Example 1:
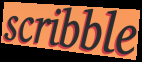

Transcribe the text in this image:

scribble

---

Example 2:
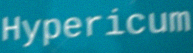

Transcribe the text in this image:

Hypericum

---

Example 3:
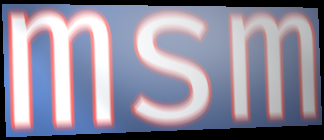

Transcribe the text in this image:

msm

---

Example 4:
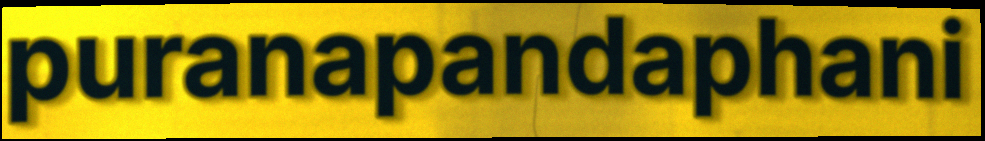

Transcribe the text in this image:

puranapandaphani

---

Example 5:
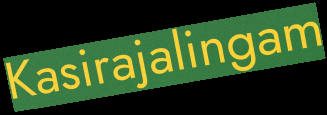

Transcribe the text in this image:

Kasirajalingam